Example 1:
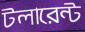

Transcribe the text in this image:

টলারেন্ট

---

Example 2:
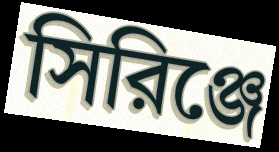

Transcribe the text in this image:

সিরিঞ্জে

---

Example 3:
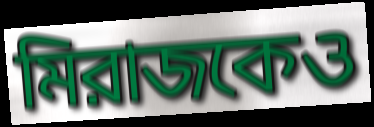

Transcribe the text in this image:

মিরাজকেও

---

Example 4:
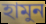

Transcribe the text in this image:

হামুন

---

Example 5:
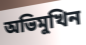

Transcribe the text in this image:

অভিমুখিন